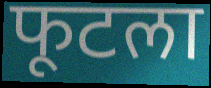
फूटला